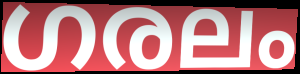
ഗരലം